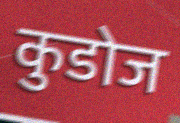
कुडोज